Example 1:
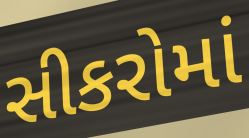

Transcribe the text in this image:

સીકરોમાં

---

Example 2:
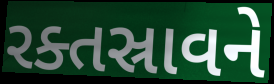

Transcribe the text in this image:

રક્તસ્રાવને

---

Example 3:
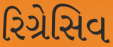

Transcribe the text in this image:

રિગ્રેસિવ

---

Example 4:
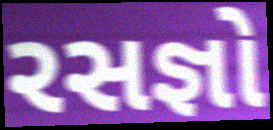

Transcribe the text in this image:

રસજ્ઞો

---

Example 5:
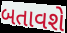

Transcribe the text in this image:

બતાવશે